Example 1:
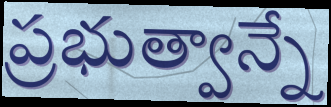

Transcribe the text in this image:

ప్రభుత్వాన్నే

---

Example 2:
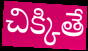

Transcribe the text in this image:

చిక్కితే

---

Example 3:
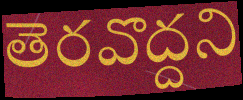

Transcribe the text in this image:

తెరవొద్దని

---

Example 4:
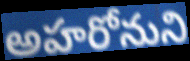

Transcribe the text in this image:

అహరోనుని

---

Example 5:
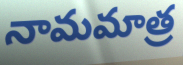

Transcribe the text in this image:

నామమాత్ర